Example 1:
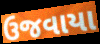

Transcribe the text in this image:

ઉજવાયા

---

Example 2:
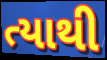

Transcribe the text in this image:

ત્યાથી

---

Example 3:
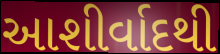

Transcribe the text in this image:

આશીર્વાદથી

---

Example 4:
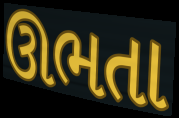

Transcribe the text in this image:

ઊભતા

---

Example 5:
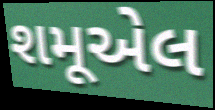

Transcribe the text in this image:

શમૂએલ